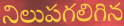
నిలుపగలిగిన